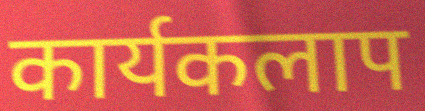
कार्यकलाप